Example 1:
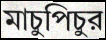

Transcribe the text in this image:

মাচুপিচুর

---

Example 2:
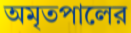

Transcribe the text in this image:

অমৃতপালের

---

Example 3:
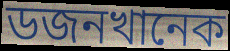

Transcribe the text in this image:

ডজনখানেক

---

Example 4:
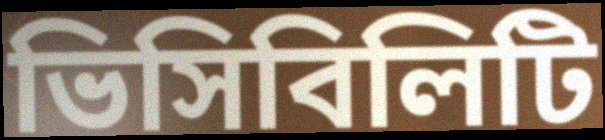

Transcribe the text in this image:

ভিসিবিলিটি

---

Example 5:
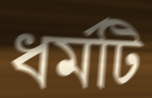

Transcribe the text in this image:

ধর্মটি